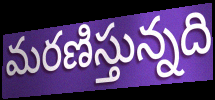
మరణిస్తున్నది